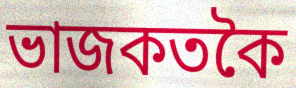
ভাজকতকৈ